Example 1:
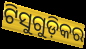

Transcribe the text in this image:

ଟିସୁଗୁଡ଼ିକର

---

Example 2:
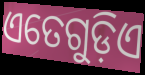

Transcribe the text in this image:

ଏତେଗୁଡ଼ିଏ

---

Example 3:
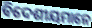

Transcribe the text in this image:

ବିଦେଶୀୟମାନେ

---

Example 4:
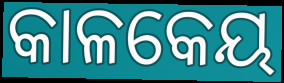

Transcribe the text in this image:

କାଳକେୟ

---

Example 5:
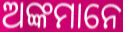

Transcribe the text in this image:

ଅଙ୍କମାନେ